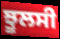
ਝੂਲਸੀ